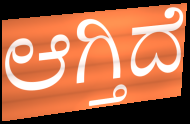
ಆಗ್ತಿದೆ